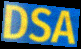
DSA